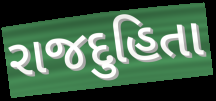
રાજદુહિતા